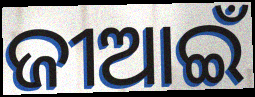
ଜୀଆଇଁ